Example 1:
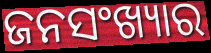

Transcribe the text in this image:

ଜନସଂଖ୍ଯାର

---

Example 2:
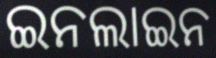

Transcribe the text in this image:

ଇନଲାଇନ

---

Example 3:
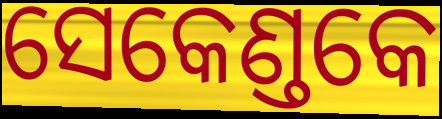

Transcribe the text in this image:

ସେକେଣ୍ଡକେ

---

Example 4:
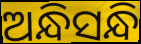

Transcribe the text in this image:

ଅନ୍ଧିସନ୍ଧି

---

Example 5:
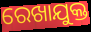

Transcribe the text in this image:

ରେଖାଯୁକ୍ତ